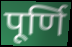
पूर्णि